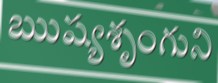
ఋష్యశృంగుని